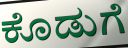
ಕೊಡುಗೆ